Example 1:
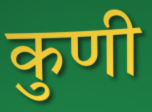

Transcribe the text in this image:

कुणी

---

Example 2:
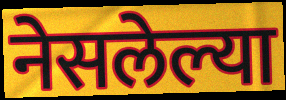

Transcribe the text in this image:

नेसलेल्या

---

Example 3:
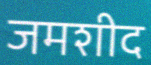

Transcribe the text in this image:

जमशीद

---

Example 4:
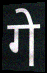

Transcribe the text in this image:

गे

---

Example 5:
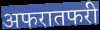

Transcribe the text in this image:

अफरातफरी